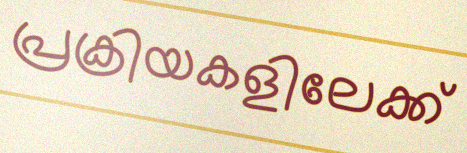
പ്രക്രിയകളിലേക്ക്